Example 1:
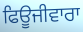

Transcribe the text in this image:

ਫਿਊਜੀਵਾਰਾ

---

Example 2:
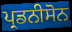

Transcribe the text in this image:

ਪ੍ਰਡਨੀਸੋਨ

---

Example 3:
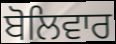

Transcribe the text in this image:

ਬੋਲਿਵਾਰ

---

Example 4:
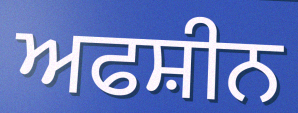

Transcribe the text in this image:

ਅਫਸ਼ੀਨ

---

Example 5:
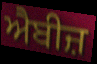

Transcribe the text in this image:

ਐਬੀਜ਼